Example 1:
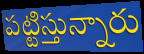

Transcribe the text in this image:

పట్టిస్తున్నారు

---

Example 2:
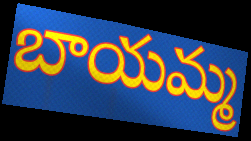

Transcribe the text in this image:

బాయమ్మ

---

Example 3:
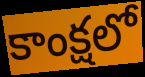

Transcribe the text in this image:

కాంక్షలో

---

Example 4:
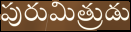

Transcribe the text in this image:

పురుమిత్రుడు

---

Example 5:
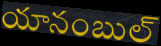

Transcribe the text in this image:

యానంబుల్